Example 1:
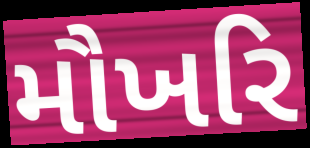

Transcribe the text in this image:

મૌખરિ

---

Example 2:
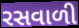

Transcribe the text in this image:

રસવાળી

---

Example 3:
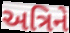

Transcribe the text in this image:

અત્રિને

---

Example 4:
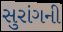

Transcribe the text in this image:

સુરાંગની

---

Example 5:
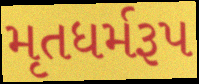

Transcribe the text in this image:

મૃતધર્મરૂપ